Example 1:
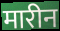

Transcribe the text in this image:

मारीन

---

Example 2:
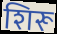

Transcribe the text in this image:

शिरू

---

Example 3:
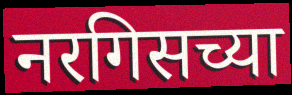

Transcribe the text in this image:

नरगिसच्या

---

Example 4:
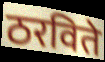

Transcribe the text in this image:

ठरविते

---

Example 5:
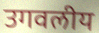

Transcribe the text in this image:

उगवलीय